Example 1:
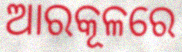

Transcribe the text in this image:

ଆରକୂଳରେ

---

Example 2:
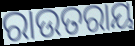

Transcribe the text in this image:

ରାଉତରାୟ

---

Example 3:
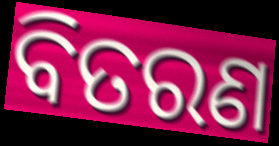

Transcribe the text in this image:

ବିତରଣ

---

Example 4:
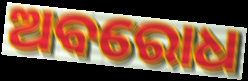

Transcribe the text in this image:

ଅବରୋଧ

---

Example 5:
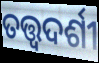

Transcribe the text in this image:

ତତ୍ତ୍ଵଦର୍ଶୀ